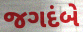
જગદંબે